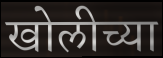
खोलीच्या